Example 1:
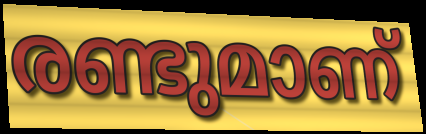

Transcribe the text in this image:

രണ്ടുമാണ്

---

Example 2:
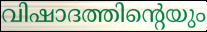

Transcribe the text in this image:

വിഷാദത്തിന്റെയും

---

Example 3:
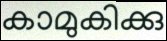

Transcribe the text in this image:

കാമുകിക്കു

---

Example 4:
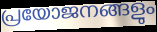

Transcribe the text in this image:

പ്രയോജനങ്ങളും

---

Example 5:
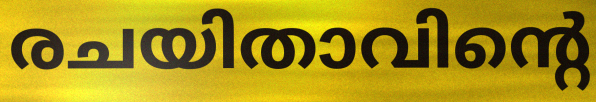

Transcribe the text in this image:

രചയിതാവിന്റെ